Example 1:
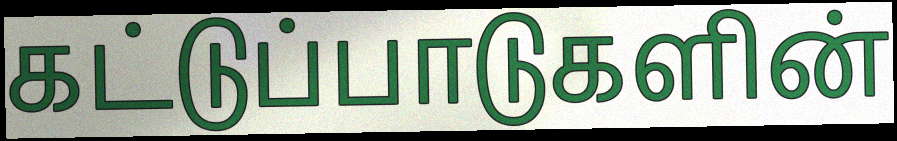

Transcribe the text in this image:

கட்டுப்பாடுகளின்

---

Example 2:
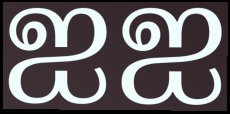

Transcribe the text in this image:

ஐஐ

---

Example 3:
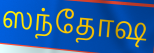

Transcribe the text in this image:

ஸந்தோஷ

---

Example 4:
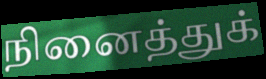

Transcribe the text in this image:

நினைத்துக்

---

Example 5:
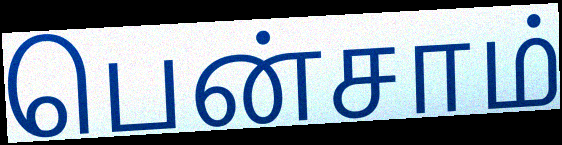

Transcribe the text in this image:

பென்சாம்